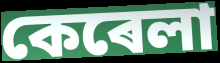
কেৰেলা